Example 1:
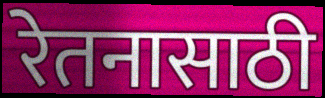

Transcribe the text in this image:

रेतनासाठी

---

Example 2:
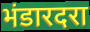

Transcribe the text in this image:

भंडारदरा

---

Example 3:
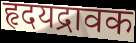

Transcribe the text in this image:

हृदयद्रावक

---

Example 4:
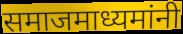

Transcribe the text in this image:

समाजमाध्यमांनी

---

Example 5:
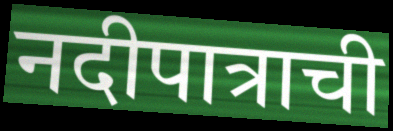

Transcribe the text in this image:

नदीपात्राची